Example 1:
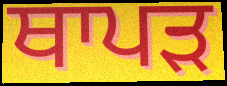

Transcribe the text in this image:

ਥਾਪੜ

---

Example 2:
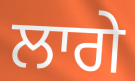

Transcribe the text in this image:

ਲਾਗੇ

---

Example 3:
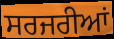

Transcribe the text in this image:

ਸਰਜਰੀਆਂ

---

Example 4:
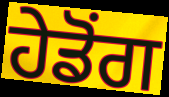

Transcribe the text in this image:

ਹੇਡੋਂਗ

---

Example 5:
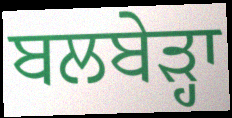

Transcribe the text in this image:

ਬਲਬੇੜ੍ਹਾ